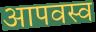
आपवस्व